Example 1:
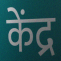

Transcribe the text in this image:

केंद्र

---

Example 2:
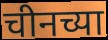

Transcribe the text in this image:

चीनच्या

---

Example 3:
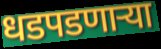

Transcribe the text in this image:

धडपडणाऱ्या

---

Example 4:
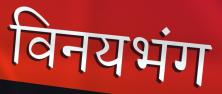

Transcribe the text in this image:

विनयभंग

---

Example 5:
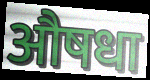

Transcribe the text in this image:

औषधा